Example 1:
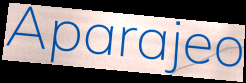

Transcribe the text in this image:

Aparajeo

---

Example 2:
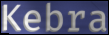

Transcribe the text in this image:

Kebra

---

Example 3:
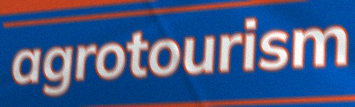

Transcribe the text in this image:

agrotourism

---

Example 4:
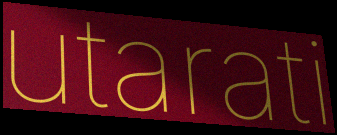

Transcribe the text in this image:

utarati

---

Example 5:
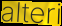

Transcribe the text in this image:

alteri